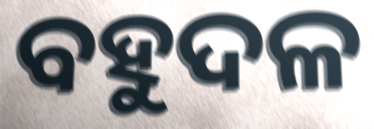
ବହୁଦଳ